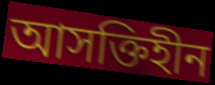
আসক্তিহীন